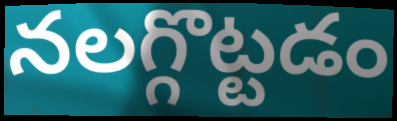
నలగ్గొట్టడం